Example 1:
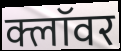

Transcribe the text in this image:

क्लॉवर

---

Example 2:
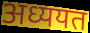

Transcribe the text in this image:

अध्ययत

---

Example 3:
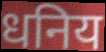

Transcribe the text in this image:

धनिय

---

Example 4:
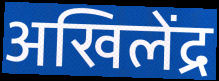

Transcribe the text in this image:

अखिलेंद्र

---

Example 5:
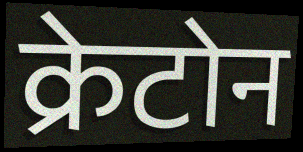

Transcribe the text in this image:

क्रेटोन